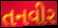
તનવીર